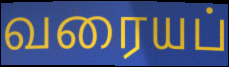
வரையப்